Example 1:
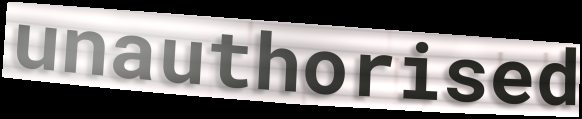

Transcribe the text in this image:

unauthorised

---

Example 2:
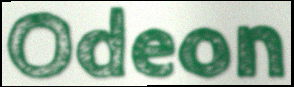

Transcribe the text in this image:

Odeon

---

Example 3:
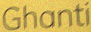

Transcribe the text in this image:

Ghanti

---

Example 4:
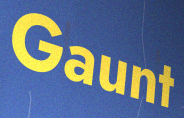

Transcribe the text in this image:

Gaunt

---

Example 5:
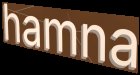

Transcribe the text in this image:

hamna